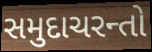
સમુદાચરન્તો